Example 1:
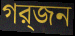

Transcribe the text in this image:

গর্‍জন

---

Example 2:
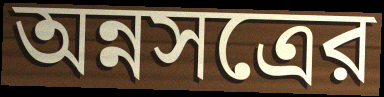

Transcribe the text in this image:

অন্নসত্রের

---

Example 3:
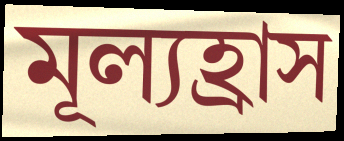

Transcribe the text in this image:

মূল্যহ্রাস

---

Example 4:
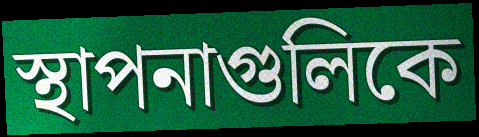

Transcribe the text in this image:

স্থাপনাগুলিকে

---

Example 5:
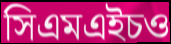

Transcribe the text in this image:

সিএমএইচও